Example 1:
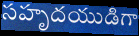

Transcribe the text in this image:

సహృదయుడిగా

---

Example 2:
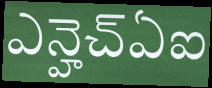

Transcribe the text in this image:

ఎన్హెచ్ఏఐ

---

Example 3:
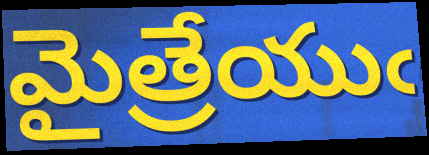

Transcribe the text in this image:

మైత్రేయుఁ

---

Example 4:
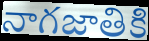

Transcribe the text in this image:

నాగజాతికి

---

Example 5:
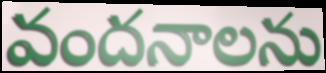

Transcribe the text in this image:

వందనాలను